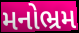
મનોભ્રમ